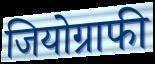
जियोग्राफी